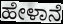
ಹೇಳಾನೆ